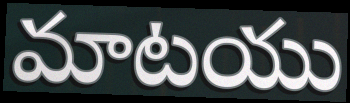
మాటయు